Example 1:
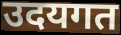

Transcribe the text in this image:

उदयगत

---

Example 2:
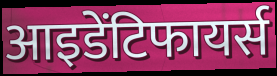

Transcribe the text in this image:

आइडेंटिफायर्स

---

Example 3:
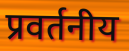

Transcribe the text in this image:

प्रवर्तनीय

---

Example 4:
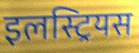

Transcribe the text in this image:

इलस्ट्रियस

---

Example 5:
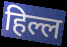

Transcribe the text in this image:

हिल्ल